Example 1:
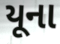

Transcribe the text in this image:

યૂના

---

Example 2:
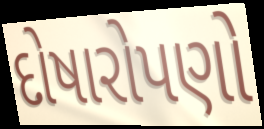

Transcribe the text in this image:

દોષારોપણો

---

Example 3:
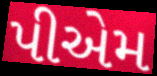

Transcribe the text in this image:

પીએમ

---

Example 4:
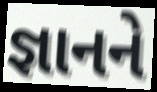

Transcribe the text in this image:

જ્ઞાનને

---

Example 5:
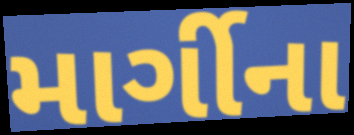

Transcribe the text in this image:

માર્ગીના